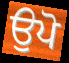
ਉਪੋ